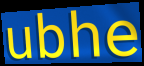
ubhe